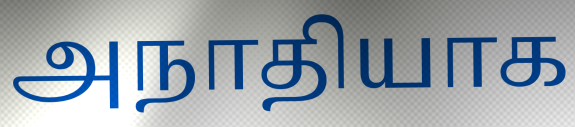
அநாதியாக